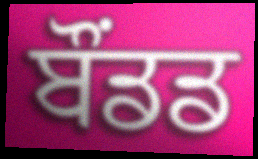
ਬੌਂਡਡ